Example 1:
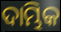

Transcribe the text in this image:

ଦାମ୍ଭିକ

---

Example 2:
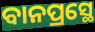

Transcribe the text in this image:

ବାନପ୍ରସ୍ଥେ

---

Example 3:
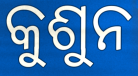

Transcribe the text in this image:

କୁଶୁନ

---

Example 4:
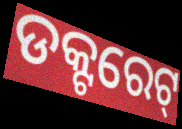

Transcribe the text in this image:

ଡକ୍ଟରେଟ୍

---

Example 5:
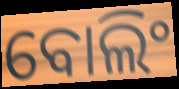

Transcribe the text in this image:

ବୋଲିଂ